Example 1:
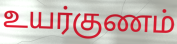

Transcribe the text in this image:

உயர்குணம்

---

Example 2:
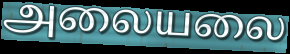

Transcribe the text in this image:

அலையலை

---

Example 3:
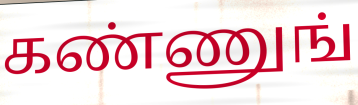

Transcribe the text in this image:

கண்ணுங்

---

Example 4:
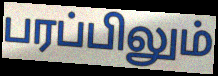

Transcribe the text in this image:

பரப்பிலும்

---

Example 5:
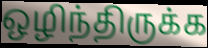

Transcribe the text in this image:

ஒழிந்திருக்க